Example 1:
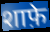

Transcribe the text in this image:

शाफ़े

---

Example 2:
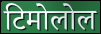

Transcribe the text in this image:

टिमोलोल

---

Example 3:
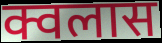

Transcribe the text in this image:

क्वलास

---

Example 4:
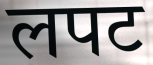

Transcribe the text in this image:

लपट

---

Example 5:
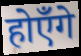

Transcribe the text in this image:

होएँगे